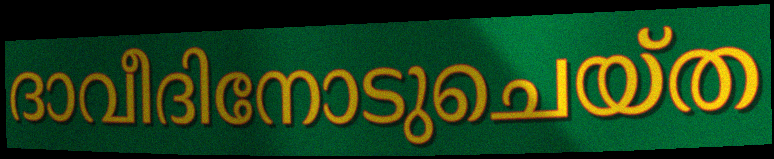
ദാവീദിനോടുചെയ്ത